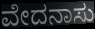
ವೇದನಾಸು